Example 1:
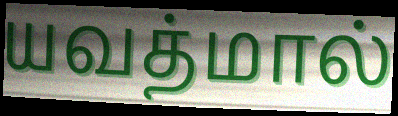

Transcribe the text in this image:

யவத்மால்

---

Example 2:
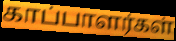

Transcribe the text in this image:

காப்பாளர்கள்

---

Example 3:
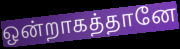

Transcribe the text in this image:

ஒன்றாகத்தானே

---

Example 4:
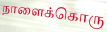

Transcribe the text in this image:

நாளைக்கொரு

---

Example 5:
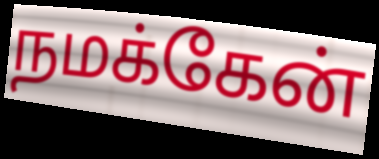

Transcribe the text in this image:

நமக்கேன்